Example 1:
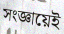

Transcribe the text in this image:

সংজ্ঞায়েই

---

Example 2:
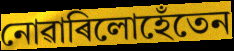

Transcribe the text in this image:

নোৱাৰিলোহেঁতেন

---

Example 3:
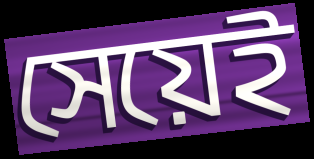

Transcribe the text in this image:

সেয়েই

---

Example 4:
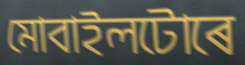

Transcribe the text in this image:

মোবাইলটোৰে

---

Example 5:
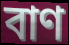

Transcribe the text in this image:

বাণ